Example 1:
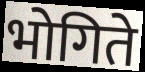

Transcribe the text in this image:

भोगिते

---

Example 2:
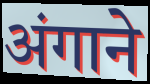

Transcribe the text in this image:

अंगाने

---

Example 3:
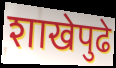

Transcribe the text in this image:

शाखेपुढे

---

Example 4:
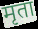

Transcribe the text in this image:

मृता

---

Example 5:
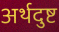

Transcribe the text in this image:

अर्थदुष्ट